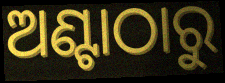
ଅଣ୍ଟାଠାରୁ